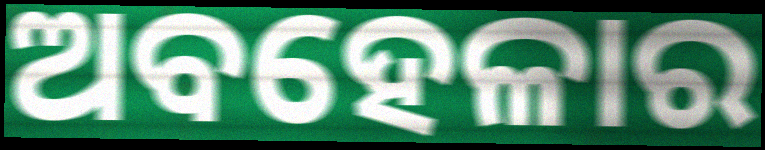
ଅବହେଳାର